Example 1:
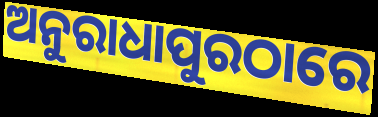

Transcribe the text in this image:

ଅନୁରାଧାପୁରଠାରେ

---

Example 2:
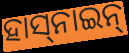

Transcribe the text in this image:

ହାସ୍‌ନାଇନ୍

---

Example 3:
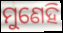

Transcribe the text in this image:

ମୁଣେହି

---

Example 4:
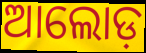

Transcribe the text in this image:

ଆଲୋଡ଼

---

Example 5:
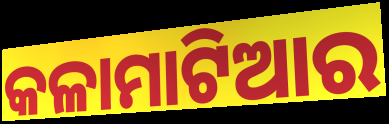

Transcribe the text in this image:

କଳାମାଟିଆର